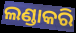
ଲଣ୍ଡାକରି